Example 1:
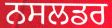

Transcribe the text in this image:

ਨਸਲਡਰ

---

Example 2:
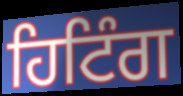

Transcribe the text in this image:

ਹਿਟਿੰਗ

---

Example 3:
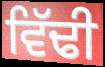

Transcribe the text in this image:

ਵਿੱਢੀ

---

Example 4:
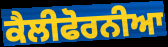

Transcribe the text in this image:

ਕੈਲੀਫੋਰਨੀਆ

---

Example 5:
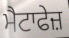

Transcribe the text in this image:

ਮੈਟਾਫੇਜ਼